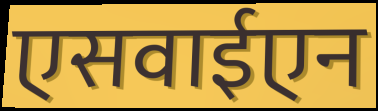
एसवाईएन